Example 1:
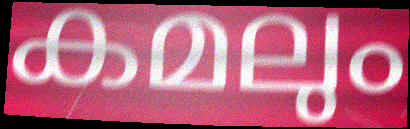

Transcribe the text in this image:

കമലും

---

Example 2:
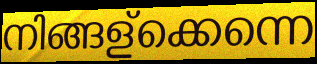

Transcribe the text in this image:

നിങ്ങള്ക്കെന്നെ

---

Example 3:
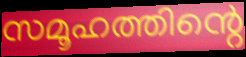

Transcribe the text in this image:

സമൂഹത്തിന്റെ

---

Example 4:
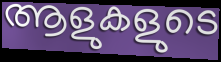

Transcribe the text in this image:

ആളുകളുടെ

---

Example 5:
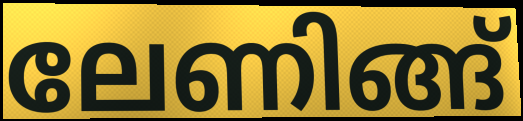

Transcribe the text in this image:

ലേണിങ്ങ്